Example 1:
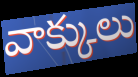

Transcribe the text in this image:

వాక్కులు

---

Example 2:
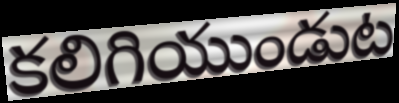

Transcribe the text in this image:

కలిగియుండుట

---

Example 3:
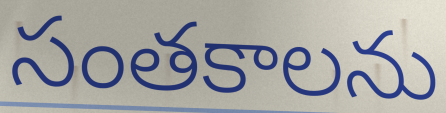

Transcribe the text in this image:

సంతకాలను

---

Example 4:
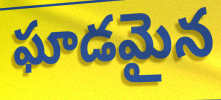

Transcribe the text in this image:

ఘాడమైన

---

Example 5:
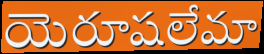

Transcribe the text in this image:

యెరూషలేమా